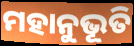
ମହାନୁଭୂତି